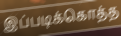
இப்படிக்கொத்த